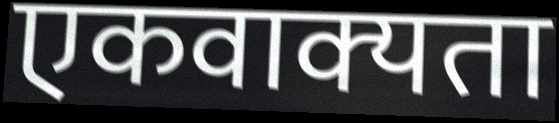
एकवाक्यता